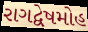
રાગદ્વેષમોહ